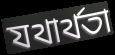
যথাৰ্থতা